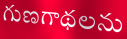
గుణగాథలను